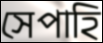
সেপাহি